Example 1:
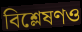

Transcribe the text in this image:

বিশ্লেষণও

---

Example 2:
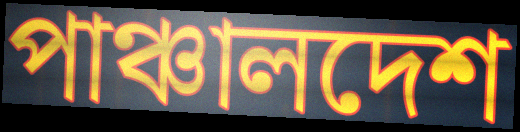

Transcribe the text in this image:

পাঞ্চালদেশ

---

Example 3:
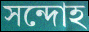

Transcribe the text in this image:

সন্দোহ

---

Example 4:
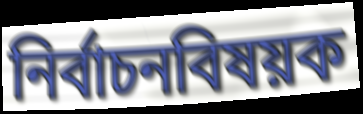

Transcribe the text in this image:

নির্বাচনবিষয়ক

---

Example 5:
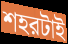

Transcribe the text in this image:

শহরটাই